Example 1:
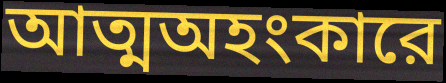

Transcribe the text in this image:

আত্মঅহংকারে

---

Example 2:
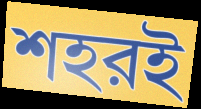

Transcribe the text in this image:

শহরই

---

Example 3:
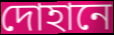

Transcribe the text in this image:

দোহানে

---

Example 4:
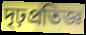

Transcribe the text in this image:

দৃঢ়প্রতিজ্ঞ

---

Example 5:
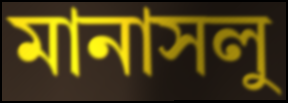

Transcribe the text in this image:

মানাসলু